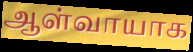
ஆள்வாயாக